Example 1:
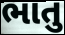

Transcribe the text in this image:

ભાતુ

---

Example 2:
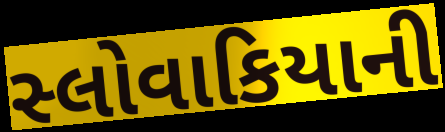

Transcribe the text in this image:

સ્લોવાકિયાની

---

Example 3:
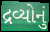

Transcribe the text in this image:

દ્રવ્યોનું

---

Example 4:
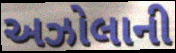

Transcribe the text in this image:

અઝોલાની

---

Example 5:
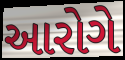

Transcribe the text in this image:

આરોગે